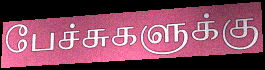
பேச்சுகளுக்கு